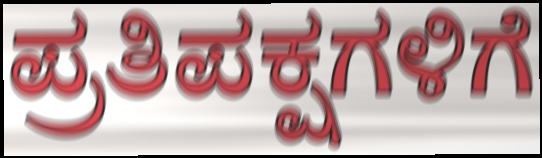
ಪ್ರತಿಪಕ್ಷಗಳಿಗೆ